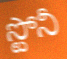
స్టోనీ